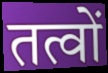
तत्वों